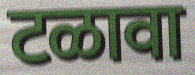
टळावा